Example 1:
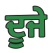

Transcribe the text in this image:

ਦੂਜੇ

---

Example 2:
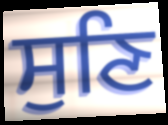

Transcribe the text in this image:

ਸੁਣਿ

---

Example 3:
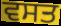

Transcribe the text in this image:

ਵਸਤ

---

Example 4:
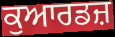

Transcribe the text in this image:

ਕੁਆਰਡਜ਼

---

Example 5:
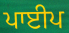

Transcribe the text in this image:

ਪਾਈਪ